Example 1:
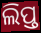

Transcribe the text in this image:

ଲିପ୍ତ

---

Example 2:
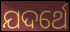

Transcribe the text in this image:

ଯଦର୍ଥେ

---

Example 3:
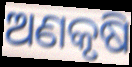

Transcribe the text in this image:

ଅଣକୃଷି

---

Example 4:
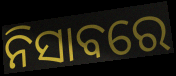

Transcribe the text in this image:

ନିସାବରେ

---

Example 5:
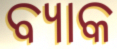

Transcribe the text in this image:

ବ୍ୟାକ